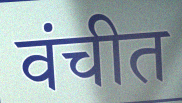
वंचीत